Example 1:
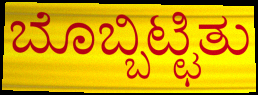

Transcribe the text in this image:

ಬೊಬ್ಬಿಟ್ಟಿತು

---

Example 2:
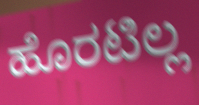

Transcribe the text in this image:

ಹೊರಟಿಲ್ಲ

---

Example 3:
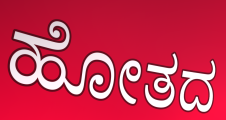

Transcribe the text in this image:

ಹೋತದ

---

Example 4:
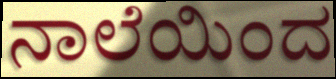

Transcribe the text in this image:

ನಾಲೆಯಿಂದ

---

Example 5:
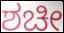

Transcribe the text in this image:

ಶಚೀ